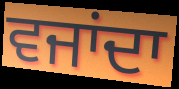
ਵਜਾਂਦਾ